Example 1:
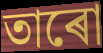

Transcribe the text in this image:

তাৰো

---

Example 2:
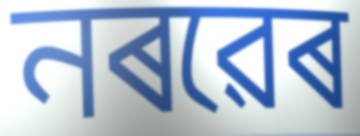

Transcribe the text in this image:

নৰৱেৰ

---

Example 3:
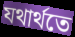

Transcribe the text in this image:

যথাৰ্থতে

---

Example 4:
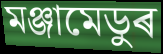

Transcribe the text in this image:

মঞ্জামেডুৰ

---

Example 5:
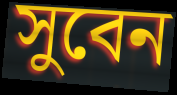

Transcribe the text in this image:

সুবেন